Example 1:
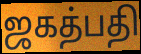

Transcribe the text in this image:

ஜகத்பதி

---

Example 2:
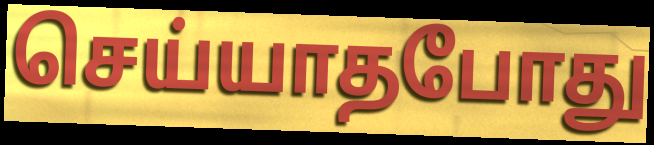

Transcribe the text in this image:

செய்யாதபோது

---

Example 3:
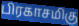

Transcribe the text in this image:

பிரகாசமிகு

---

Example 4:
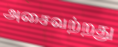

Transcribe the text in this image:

அசைவற்றது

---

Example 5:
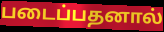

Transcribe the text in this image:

படைப்பதனால்